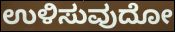
ಉಳಿಸುವುದೋ